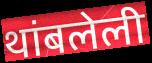
थांबलेली